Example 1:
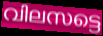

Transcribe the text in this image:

വിലസട്ടെ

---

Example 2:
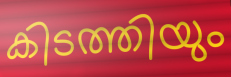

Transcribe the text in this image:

കിടത്തിയും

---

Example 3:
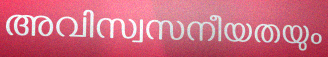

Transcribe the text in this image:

അവിസ്വസനീയതയും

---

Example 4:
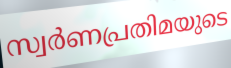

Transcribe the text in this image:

സ്വർണപ്രതിമയുടെ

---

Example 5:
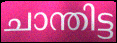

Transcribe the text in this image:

ചാന്തിട്ട